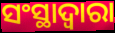
ସଂସ୍ଥାଦ୍ୱାରା